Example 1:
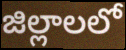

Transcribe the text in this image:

జిల్లాలలో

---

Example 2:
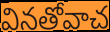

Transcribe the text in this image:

వినతోవాచ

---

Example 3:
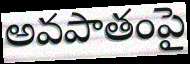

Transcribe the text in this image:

అవపాతంపై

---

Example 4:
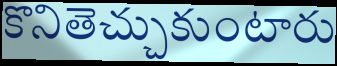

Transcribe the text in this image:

కొనితెచ్చుకుంటారు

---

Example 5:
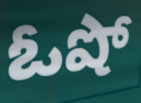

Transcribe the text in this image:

ఓషో